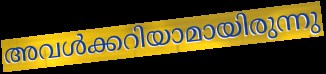
അവൾക്കറിയാമായിരുന്നു